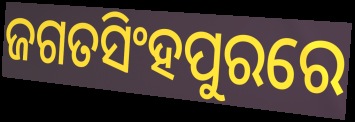
ଜଗତସିଂହପୁରରେ